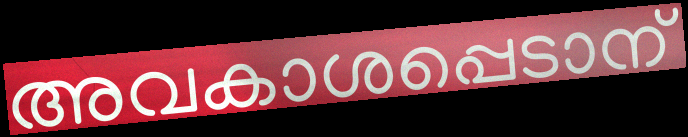
അവകാശപ്പെടാന്